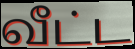
வீட்ட